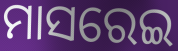
ମାସରେଇ